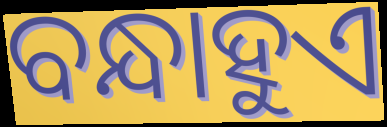
ବନ୍ଧାହୁଏ